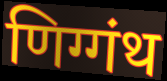
णिग्गंथ